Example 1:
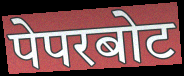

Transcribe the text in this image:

पेपरबोट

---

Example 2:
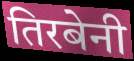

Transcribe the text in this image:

तिरबेनी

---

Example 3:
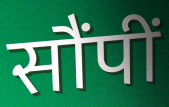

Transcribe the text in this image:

सौंपीं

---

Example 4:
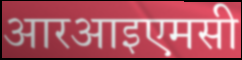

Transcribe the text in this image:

आरआइएमसी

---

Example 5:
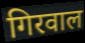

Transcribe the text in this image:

गिरवाल